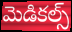
మెడికల్స్